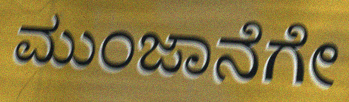
ಮುಂಜಾನೆಗೇ